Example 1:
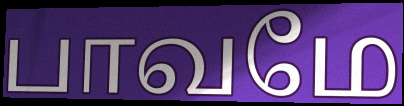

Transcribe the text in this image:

பாவமே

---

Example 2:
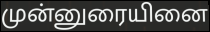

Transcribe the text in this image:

முன்னுரையினை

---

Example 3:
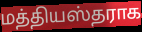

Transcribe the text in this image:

மத்தியஸ்தராக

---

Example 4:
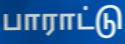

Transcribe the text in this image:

பாராட்டு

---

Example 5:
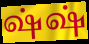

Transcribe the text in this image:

ஷ்ஷ்